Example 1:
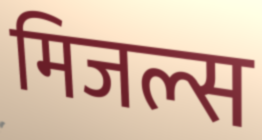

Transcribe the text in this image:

मिजल्स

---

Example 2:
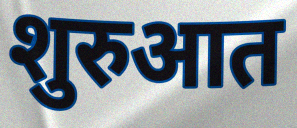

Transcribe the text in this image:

शुरुआत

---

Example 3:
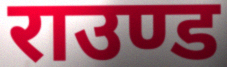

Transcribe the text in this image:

राउण्ड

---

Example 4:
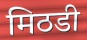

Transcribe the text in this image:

मिठडी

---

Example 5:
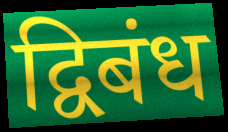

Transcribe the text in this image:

द्विबंध